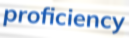
proficiency